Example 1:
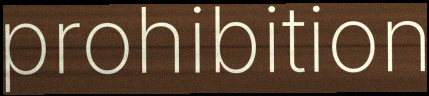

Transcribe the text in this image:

prohibition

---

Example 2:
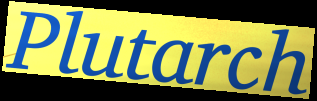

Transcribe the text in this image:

Plutarch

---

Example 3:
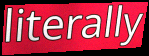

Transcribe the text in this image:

literally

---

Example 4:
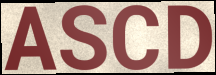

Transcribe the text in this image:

ASCD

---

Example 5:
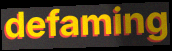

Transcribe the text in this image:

defaming